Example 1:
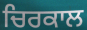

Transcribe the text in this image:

ਚਿਰਕਾਲ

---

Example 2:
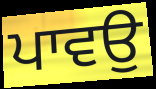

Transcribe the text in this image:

ਪਾਵਉ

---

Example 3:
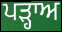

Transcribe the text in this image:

ਪੜ੍ਹਾਅ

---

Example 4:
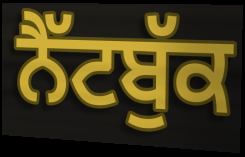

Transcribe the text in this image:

ਨੈੱਟਬੁੱਕ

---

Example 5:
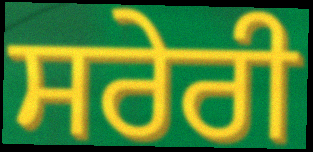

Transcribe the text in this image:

ਸਰੇਰੀ